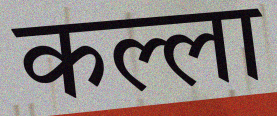
कल्ला